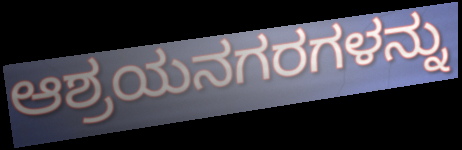
ಆಶ್ರಯನಗರಗಳನ್ನು